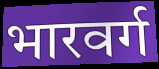
भारवर्ग